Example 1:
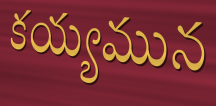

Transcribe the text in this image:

కయ్యమున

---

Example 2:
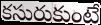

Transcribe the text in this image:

కసురుకుంటే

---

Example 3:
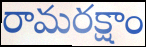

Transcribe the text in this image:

రామరక్షాం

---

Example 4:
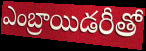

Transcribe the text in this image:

ఎంబ్రాయిడరీతో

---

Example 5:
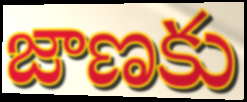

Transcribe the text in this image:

జాణకు